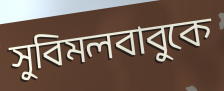
সুবিমলবাবুকে